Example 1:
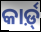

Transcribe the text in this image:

କାର୍ଡ଼୍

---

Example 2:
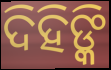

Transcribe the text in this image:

ଦିହିଙ୍କି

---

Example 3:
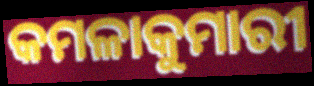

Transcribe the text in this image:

କମଳାକୁମାରୀ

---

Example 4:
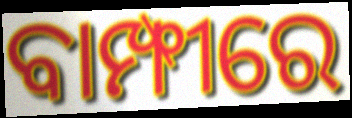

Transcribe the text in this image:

ବାମ୍ଫୀରେ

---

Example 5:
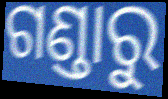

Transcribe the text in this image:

ଗଣ୍ଡାରୁ